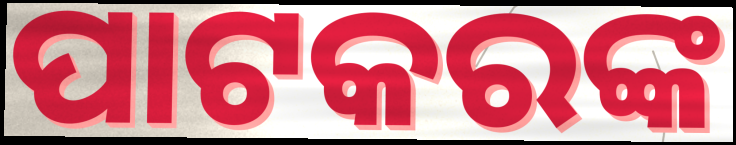
ପାଟକରଙ୍କ